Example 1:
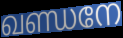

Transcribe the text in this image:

ഖണ്ഡനേ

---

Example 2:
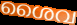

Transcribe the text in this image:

ശൈവ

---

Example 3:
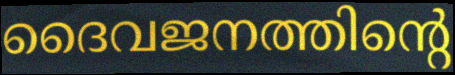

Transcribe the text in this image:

ദൈവജനത്തിന്റെ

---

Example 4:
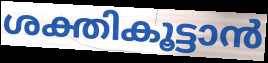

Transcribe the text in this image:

ശക്തികൂട്ടാൻ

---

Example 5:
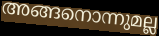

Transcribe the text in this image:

അങ്ങനൊന്നുമല്ല